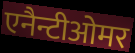
एनैन्टीओमर